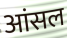
आंसल